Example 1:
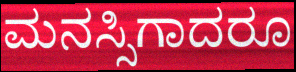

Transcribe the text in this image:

ಮನಸ್ಸಿಗಾದರೂ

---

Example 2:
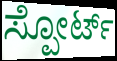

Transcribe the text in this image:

ಸ್ಪೋರ್ಟ್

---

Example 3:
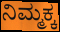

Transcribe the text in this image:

ನಿಮ್ಮಕ್ಕ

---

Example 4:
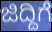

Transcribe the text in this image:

ಜಿದ್ದಿಗೆ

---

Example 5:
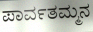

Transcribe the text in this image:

ಪಾರ್ವತಮ್ಮನ